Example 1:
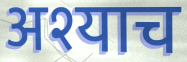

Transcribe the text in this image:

अश्याच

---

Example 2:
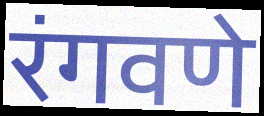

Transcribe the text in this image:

रंगवणे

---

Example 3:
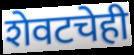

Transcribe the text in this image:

शेवटचेही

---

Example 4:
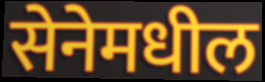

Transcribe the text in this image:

सेनेमधील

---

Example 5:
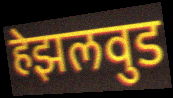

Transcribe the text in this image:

हेझलवुड